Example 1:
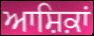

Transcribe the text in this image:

ਆਸ਼ਿਕ਼ਾਂ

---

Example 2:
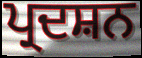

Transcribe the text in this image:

ਪ੍ਰਦਸ਼ਨ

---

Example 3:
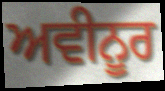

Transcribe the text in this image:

ਅਵੀਨੂਰ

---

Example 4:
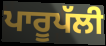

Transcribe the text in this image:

ਪਾਰੂਪੱਲੀ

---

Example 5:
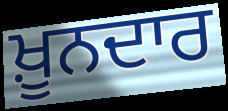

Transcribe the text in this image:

ਖ਼ੂਨਦਾਰ